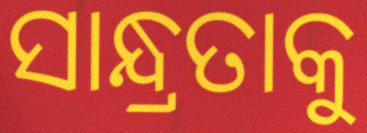
ସାନ୍ଧ୍ରତାକୁ